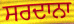
ਸਰਦਾਨਾ